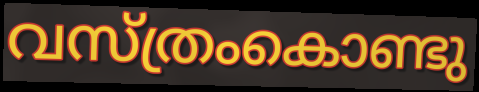
വസ്ത്രംകൊണ്ടു